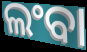
ଲଂବା